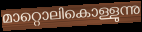
മാറ്റൊലികൊള്ളുന്നു